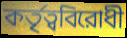
কর্তৃত্ববিরোধী